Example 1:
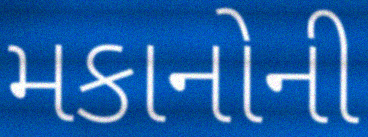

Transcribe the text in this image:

મકાનોની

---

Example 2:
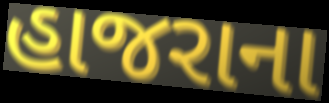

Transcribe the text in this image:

હાજરાના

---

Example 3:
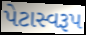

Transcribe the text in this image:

પેટાસ્વરૂપ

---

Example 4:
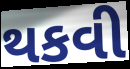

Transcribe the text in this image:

થકવી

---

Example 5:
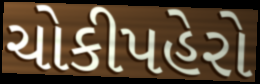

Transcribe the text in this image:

ચોકીપહેરો